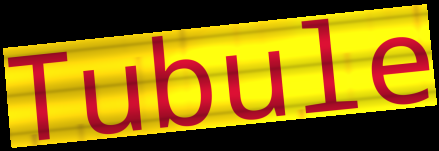
Tubule